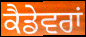
ਕੈਡੇਵਰਾਂ